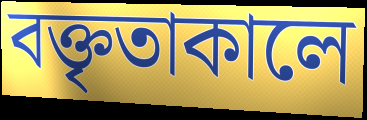
বক্তৃতাকালে